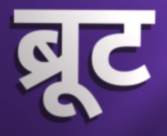
ब्रूट